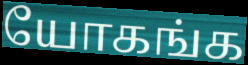
யோகங்க